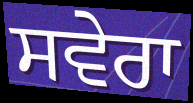
ਸਵੇਰਾ